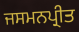
ਜਸਮਨਪ੍ਰੀਤ